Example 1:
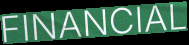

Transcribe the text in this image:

FINANCIAL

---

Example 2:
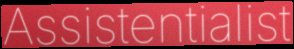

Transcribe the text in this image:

Assistentialist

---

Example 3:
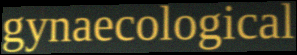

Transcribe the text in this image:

gynaecological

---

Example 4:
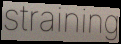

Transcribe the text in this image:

straining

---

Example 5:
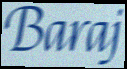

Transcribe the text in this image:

Baraj